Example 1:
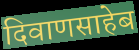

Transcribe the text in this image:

दिवाणसाहेब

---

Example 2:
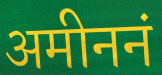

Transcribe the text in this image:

अमीननं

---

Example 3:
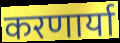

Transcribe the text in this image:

करणार्या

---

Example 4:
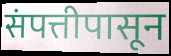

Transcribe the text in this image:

संपत्तीपासून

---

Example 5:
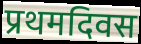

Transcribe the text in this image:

प्रथमदिवस